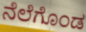
ನೆಲೆಗೊಂಡ